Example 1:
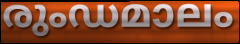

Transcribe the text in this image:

രുംഡമാലം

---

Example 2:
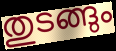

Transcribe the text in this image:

തുടങ്ങും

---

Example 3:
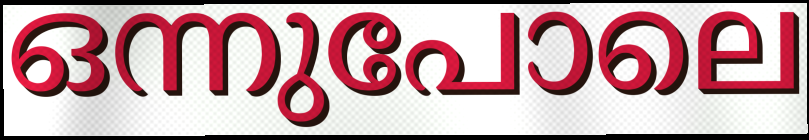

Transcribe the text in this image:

ഒന്നുപോലെ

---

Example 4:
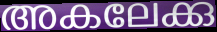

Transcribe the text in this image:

അകലേക്കു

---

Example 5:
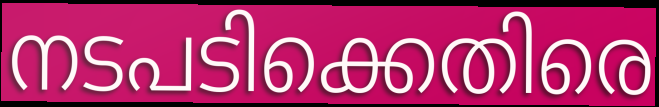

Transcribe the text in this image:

നടപടിക്കെതിരെ